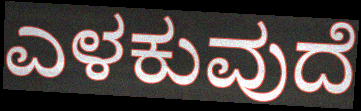
ಎಳಕುವುದೆ